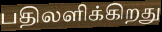
பதிலளிக்கிறது